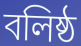
বলিষ্ঠ